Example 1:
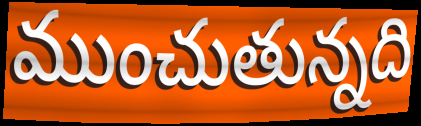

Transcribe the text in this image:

ముంచుతున్నది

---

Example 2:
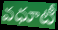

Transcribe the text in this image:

వధూటీ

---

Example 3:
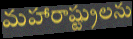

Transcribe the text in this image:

మహారాష్ట్రులను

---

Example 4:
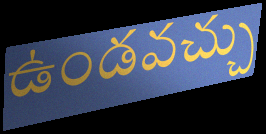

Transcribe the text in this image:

ఉండవచ్చు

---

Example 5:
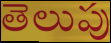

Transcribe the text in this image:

తెలుపు